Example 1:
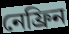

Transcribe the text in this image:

নেফ্রিন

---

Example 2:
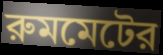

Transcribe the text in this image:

রুমমেটের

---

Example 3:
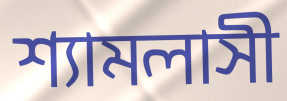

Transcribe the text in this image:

শ্যামলাসী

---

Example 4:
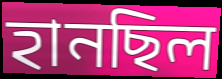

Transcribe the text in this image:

হানছিল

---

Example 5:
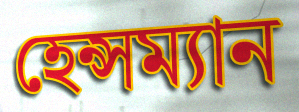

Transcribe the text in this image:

হেন্সম্যান